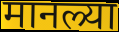
मानल्या